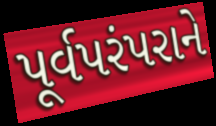
પૂર્વપરંપરાને